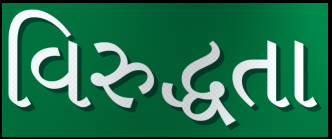
વિરુદ્ધતા